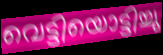
വെട്ടിയൊട്ടിച്ചു